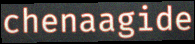
chenaagide